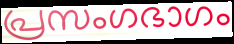
പ്രസംഗഭാഗം